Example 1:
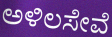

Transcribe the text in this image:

ಅಳಿಲಸೇವೆ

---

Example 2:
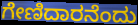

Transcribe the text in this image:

ಗೇಣಿದಾರನೆಂದು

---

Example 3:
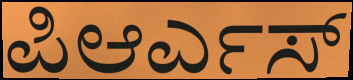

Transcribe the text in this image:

ಪಿಆರ್ಎಸ್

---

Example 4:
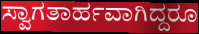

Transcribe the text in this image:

ಸ್ವಾಗತಾರ್ಹವಾಗಿದ್ದರೂ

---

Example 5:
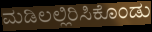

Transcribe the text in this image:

ಮಡಿಲಲ್ಲಿರಿಸಿಕೊಂಡು